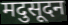
मदुसूदन